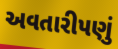
અવતારીપણું